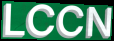
LCCN